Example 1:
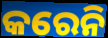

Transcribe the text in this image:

କରେନି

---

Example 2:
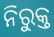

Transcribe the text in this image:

ନିରୁକ୍ତ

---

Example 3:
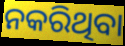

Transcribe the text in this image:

ନକରିଥିବା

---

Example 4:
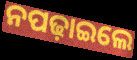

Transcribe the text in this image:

ନପଢ଼ାଇଲେ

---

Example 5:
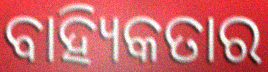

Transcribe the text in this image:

ବାହ୍ୟିକତାର